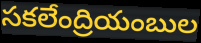
సకలేంద్రియంబుల